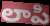
లాపి